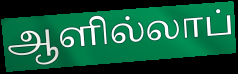
ஆளில்லாப்